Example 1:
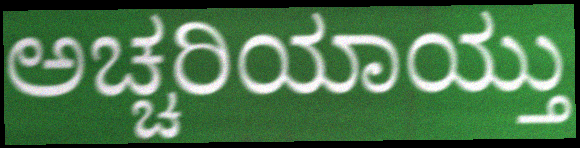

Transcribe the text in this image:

ಅಚ್ಚರಿಯಾಯ್ತು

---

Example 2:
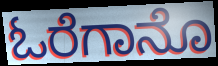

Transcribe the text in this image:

ಓರೆಗಾನೊ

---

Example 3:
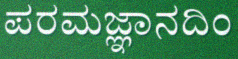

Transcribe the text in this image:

ಪರಮಜ್ಞಾನದಿಂ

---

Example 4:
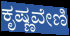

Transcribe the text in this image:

ಕೃಷ್ಣವೇಣಿ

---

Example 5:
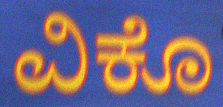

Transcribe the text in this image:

ವಿಕೊ